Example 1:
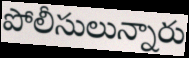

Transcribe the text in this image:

పోలీసులున్నారు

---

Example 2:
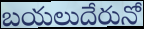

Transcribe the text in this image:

బయలుదేరునో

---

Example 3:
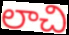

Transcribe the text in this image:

లాచి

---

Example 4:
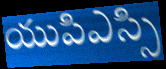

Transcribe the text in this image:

యుపిఎస్సి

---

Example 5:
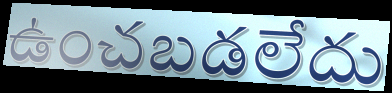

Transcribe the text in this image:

ఉంచబడలేదు